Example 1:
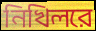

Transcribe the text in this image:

নিখিলরে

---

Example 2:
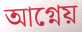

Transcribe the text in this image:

আগ্নেয়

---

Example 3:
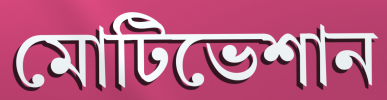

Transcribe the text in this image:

মোটিভেশান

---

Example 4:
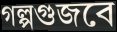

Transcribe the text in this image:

গল্পগুজবে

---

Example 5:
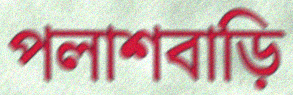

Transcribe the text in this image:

পলাশবাড়ি